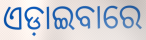
ଏଡ଼ାଇବାରେ